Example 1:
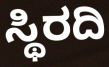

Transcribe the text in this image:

ಸ್ಥಿರದಿ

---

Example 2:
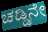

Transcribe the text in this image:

ಚಡ್ಡಿನೇ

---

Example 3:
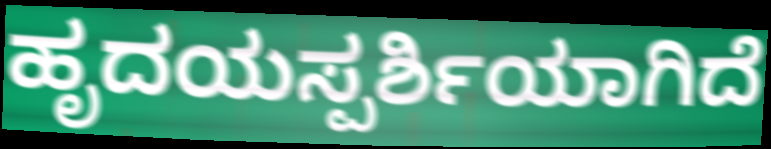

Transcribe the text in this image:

ಹೃದಯಸ್ಪರ್ಶಿಯಾಗಿದೆ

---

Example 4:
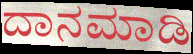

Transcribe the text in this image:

ದಾನಮಾಡಿ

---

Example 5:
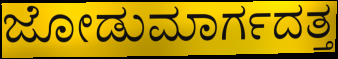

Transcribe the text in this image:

ಜೋಡುಮಾರ್ಗದತ್ತ